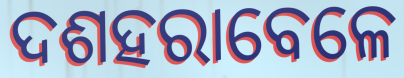
ଦଶହରାବେଳେ